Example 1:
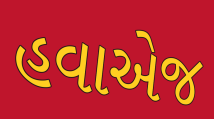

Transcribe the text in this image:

હવાએજ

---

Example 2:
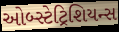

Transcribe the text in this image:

ઓબ્સ્ટેટ્રિશિયન્સ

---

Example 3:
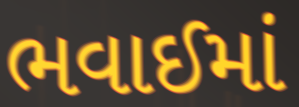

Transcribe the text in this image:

ભવાઈમાં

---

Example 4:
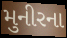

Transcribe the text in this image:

મુનીરના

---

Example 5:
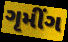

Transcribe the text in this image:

ગૃમીંગ